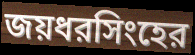
জয়ধরসিংহের